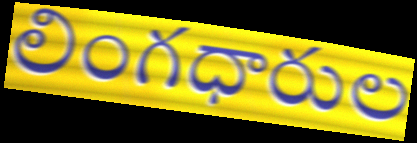
లింగధారుల